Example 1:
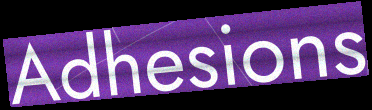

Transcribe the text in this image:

Adhesions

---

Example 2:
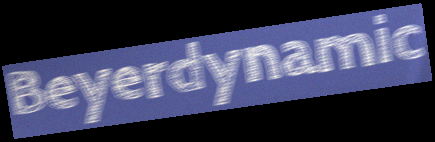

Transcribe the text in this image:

Beyerdynamic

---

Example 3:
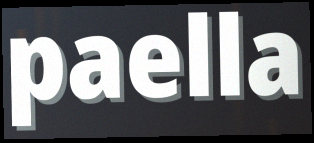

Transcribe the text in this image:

paella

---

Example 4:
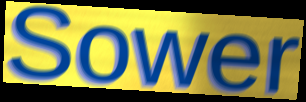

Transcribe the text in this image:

Sower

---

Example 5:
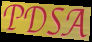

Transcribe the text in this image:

PDSA